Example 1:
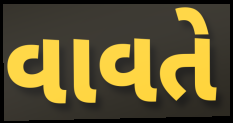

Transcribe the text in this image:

વાવતે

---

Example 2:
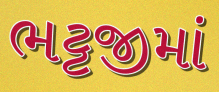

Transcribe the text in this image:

ભટ્ટજીમાં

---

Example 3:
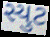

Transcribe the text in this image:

સ્યુટ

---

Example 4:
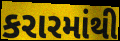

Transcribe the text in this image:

કરારમાંથી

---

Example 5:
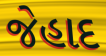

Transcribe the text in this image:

જેહાદ